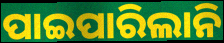
ପାଇପାରିଲାନି